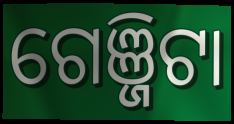
ଗେଞ୍ଜିଟା